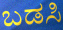
ಬಡಸಿ